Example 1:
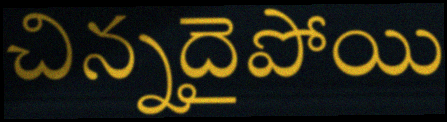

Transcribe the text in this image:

చిన్నదైపోయి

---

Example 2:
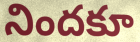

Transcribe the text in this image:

నిందకూ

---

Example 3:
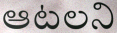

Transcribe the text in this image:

ఆటలని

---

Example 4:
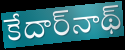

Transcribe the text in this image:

కేదార్‌నాథ్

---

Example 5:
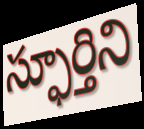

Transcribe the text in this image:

స్ఫూర్తిని